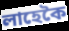
লাহেকৈ